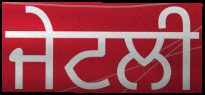
ਜੇਟਲੀ